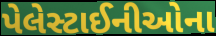
પેલેસ્ટાઈનીઓના